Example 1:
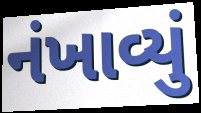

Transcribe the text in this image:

નંખાવ્યું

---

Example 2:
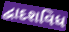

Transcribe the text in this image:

દ્વાદશવિધ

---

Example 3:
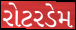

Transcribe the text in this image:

રોટરડેમ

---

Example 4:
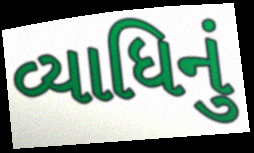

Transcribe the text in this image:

વ્યાધિનું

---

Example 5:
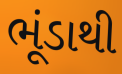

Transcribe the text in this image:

ભૂંડાથી